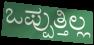
ಒಪ್ಪುತ್ತಿಲ್ಲ